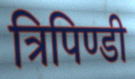
त्रिपिण्डी